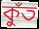
কুঁত